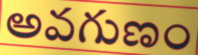
అవగుణం